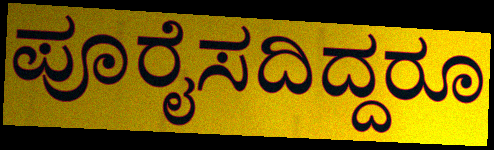
ಪೂರೈಸದಿದ್ದರೂ